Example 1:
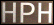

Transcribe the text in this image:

HPH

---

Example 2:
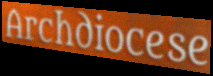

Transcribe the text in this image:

Archdiocese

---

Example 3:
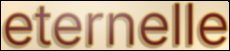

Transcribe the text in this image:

eternelle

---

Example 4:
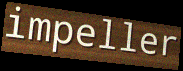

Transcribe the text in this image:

impeller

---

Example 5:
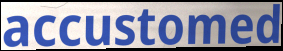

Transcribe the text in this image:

accustomed